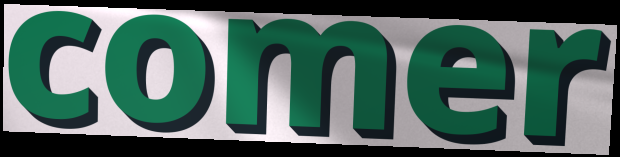
comer